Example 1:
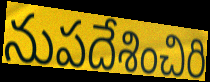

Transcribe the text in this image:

నుపదేశించిరి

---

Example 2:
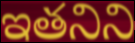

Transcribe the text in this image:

ఇతనిని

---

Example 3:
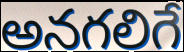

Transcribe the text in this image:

అనగలిగే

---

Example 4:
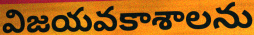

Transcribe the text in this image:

విజయవకాశాలను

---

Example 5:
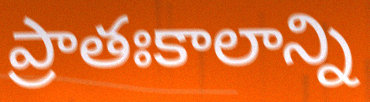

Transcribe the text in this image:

ప్రాతఃకాలాన్ని